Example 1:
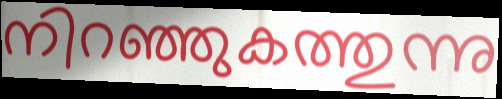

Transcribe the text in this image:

നിറഞ്ഞുകത്തുന്നു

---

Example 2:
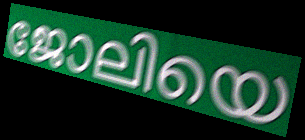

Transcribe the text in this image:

ജോലിയെ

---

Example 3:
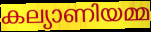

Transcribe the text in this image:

കല്യാണിയമ്മ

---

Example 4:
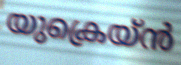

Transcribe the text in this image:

യുക്രെയ്ൻ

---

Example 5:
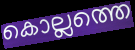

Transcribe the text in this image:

കൊല്ലത്തെ